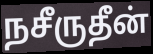
நசீருதீன்